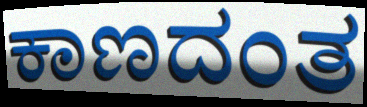
ಕಾಣದಂತ